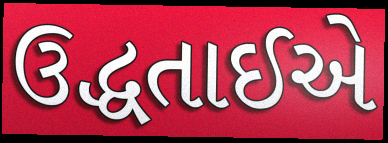
ઉદ્ધતાઈએ